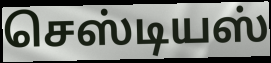
செஸ்டியஸ்